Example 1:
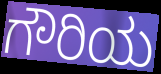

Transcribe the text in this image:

ಗೌರಿಯ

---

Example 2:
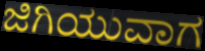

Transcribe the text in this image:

ಜಿಗಿಯುವಾಗ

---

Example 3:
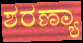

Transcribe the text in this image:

ಶರಣ್ಯಾ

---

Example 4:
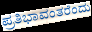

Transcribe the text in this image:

ಪ್ರತಿಭಾವಂತರೆಂದು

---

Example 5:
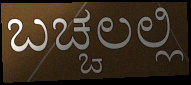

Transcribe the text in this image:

ಬಚ್ಚಲಲ್ಲಿ